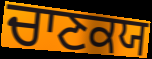
ਚਾਣਕਯ